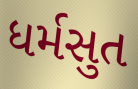
ધર્મસુત